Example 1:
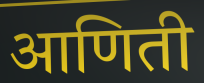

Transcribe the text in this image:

आणिती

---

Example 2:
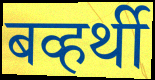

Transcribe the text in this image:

बव्हर्थी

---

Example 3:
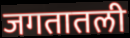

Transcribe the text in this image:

जगतातली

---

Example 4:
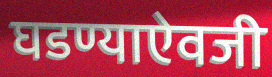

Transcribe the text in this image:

घडण्याऐवजी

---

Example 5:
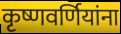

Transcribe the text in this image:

कृष्णवर्णियांना